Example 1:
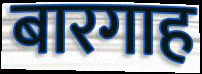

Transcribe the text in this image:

बारगाह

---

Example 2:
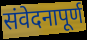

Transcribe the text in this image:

संवेदनापूर्ण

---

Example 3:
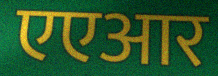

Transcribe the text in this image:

एएआर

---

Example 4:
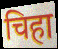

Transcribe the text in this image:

चिहा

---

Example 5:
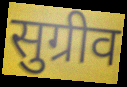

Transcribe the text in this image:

सुग्रीव